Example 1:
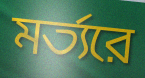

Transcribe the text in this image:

মর্ত্যরে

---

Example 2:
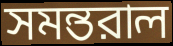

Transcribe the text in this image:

সমন্তরাল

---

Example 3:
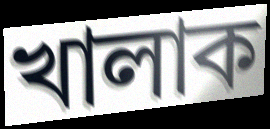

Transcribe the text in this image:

খালাক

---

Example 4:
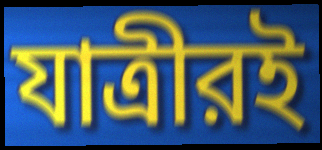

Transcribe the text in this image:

যাত্রীরই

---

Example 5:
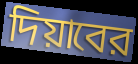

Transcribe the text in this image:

দিয়াবের